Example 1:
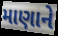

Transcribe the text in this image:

માણાને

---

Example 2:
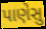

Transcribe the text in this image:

પાણેસુ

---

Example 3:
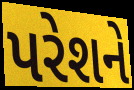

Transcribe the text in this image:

પરેશને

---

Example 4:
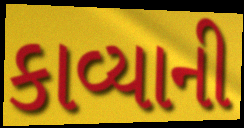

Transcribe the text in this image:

કાવ્યાની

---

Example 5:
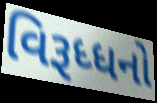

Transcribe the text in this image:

વિરૂધ્ધનો